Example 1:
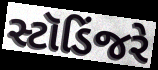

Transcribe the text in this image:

સ્ટૉડિંજરે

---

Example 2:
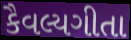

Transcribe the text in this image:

કૈવલ્યગીતા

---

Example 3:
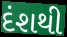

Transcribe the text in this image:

દંશથી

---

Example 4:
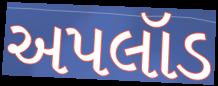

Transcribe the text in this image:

અપલૉડ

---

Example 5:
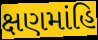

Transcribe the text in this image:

ક્ષણમાંહિ